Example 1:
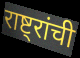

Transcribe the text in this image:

राष्ट्रांची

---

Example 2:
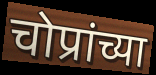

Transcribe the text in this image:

चोप्रांच्या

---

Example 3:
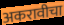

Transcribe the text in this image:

अकरावीचा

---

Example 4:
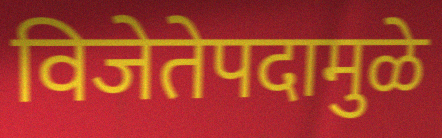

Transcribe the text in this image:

विजेतेपदामुळे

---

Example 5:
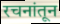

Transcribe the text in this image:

रचनांतून